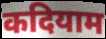
कदियाम